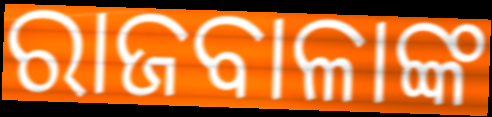
ରାଜବାଳାଙ୍କ